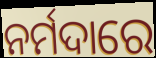
ନର୍ମଦାରେ